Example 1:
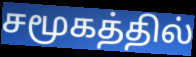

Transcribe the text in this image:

சமூகத்தில்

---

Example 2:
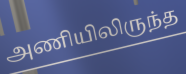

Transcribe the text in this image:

அணியிலிருந்த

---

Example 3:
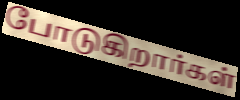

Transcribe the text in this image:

போடுகிறார்கள்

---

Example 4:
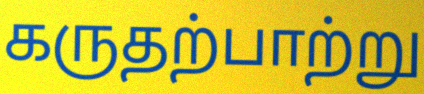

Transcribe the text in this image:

கருதற்பாற்று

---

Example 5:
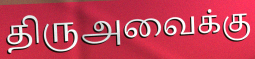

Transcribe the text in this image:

திருஅவைக்கு